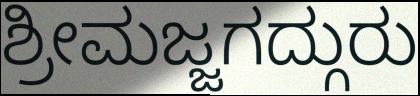
ಶ್ರೀಮಜ್ಜಗದ್ಗುರು